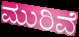
ಮುರಿವೆ